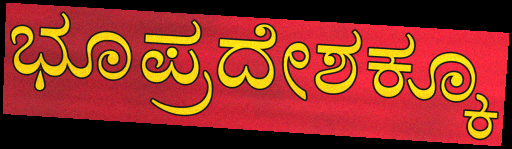
ಭೂಪ್ರದೇಶಕ್ಕೂ